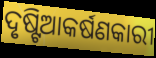
ଦୃଷ୍ଟିଆକର୍ଷଣକାରୀ